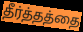
தீர்த்தத்தை